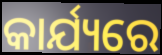
କାର୍ଯ୍ୟରେ